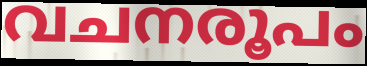
വചനരൂപം